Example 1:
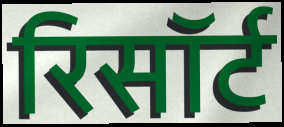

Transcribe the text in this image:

रिसॉर्ट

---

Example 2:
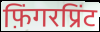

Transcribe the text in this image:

फ़िंगरप्रिंट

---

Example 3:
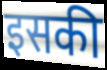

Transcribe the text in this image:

इसकी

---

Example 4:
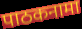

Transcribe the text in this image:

पाठकनामा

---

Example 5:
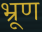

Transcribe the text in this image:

भ्रूण